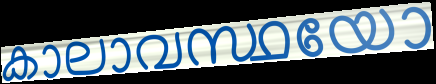
കാലാവസ്ഥയോ